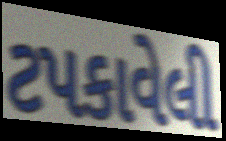
ટપકાવેલી